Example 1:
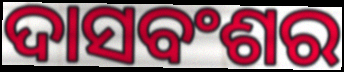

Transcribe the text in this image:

ଦାସବଂଶର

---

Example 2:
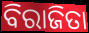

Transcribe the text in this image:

ବିରାଜିତା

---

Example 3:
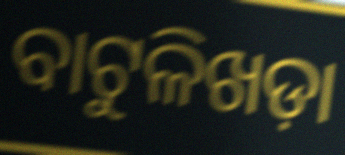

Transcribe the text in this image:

ବାଟୁଳିଖଡ଼ା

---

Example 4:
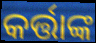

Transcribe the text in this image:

କର୍ତ୍ତାଙ୍କ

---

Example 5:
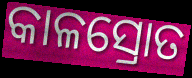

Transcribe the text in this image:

କାଳସ୍ରୋତ